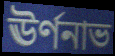
ঊর্ণনাভ